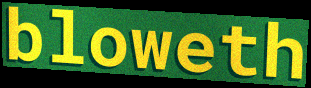
bloweth